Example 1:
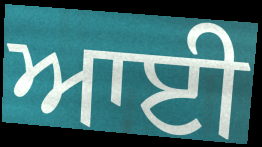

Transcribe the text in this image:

ਆਈ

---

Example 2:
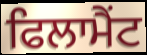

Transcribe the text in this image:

ਫਿਲਾਮੈਂਟ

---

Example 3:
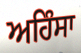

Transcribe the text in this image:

ਅਹਿੰਸਾ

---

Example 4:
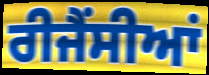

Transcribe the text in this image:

ਰੀਜੈਂਸੀਆਂ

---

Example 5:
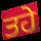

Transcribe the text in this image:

ਤਹੇ